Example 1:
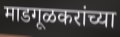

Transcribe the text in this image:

माडगूळकरांच्या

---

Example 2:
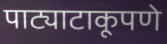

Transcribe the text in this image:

पाट्याटाकूपणे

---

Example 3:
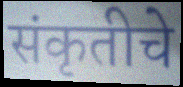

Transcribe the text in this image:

संकृतीचे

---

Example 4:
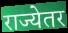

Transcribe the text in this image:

राज्येतर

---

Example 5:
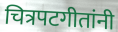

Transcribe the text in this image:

चित्रपटगीतांनी